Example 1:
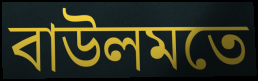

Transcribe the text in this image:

বাউলমতে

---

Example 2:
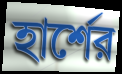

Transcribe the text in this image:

হার্শের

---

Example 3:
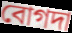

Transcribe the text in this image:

বোগদা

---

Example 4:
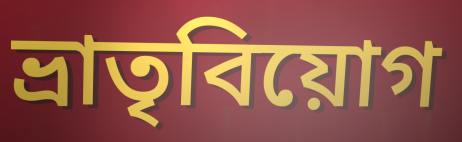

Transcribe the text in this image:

ভ্রাতৃবিয়োগ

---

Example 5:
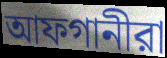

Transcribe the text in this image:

আফগানীরা